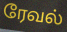
ரேவல்